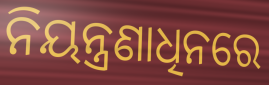
ନିୟନ୍ତ୍ରଣାଧିନରେ